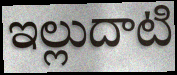
ఇల్లుదాటి